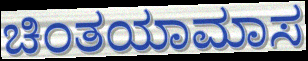
ಚಿಂತಯಾಮಾಸ